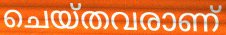
ചെയ്തവരാണ്